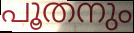
പൂതനും